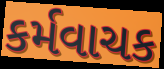
કર્મવાચક